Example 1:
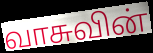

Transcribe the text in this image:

வாசுவின்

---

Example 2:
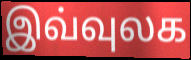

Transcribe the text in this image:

இவ்வுலக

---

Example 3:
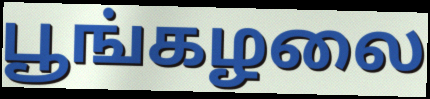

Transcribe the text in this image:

பூங்கழலை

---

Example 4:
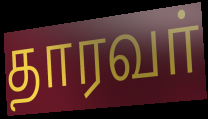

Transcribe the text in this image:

தாரவர்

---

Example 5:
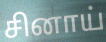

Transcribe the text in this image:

சினாய்